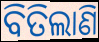
ବିତିଲାଣି